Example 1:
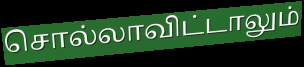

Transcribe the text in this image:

சொல்லாவிட்டாலும்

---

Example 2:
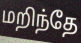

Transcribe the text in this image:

மறிந்தே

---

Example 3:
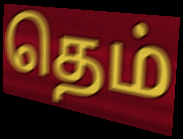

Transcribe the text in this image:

தெம்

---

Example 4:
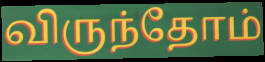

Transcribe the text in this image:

விருந்தோம்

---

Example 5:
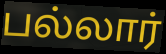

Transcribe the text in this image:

பல்லார்